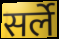
सर्ले